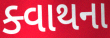
ક્વાથના